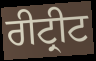
ਰੀਟ੍ਰੀਟ